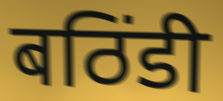
बठिंडी